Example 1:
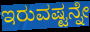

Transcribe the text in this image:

ಇರುವಷ್ಟನ್ನೇ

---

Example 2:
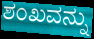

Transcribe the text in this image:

ಶಂಖವನ್ನು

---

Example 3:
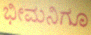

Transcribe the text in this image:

ಭೀಮನಿಗೂ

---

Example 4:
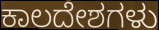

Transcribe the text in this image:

ಕಾಲದೇಶಗಳು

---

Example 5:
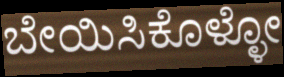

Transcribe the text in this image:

ಬೇಯಿಸಿಕೊಳ್ಳೋ